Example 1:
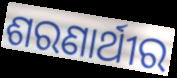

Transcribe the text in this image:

ଶରଣାର୍ଥୀର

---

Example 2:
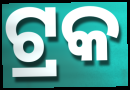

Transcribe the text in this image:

ଟ୍ରକ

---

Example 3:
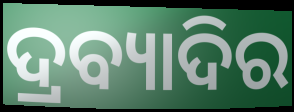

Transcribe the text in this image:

ଦ୍ରବ୍ୟାଦିର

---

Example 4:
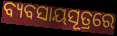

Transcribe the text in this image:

ବ୍ୟବସାୟସୂତ୍ରରେ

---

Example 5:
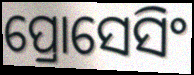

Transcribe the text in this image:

ପ୍ରୋସେସିଂ